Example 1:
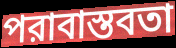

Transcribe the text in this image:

পরাবাস্তবতা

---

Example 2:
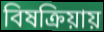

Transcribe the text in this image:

বিষক্রিয়ায়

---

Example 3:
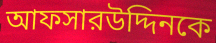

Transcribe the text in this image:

আফসারউদ্দিনকে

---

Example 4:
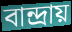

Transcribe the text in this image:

বান্দ্রায়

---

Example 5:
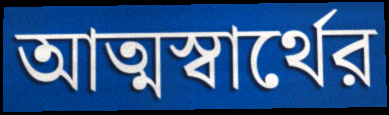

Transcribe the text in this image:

আত্মস্বার্থের